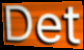
Det